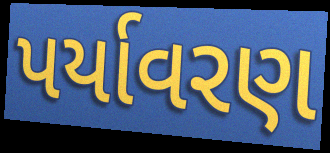
પર્યાવરણ